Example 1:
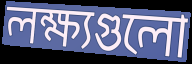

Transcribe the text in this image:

লক্ষ্যগুলো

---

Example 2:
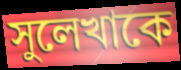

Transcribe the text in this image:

সুলেখাকে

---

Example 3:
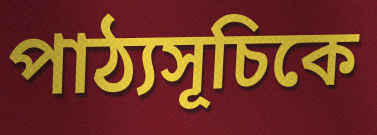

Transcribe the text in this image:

পাঠ্যসূচিকে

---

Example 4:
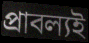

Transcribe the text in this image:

প্রাবল্যই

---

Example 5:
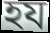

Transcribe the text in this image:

হয